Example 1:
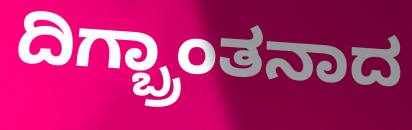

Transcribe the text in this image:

ದಿಗ್ಬ್ರಾಂತನಾದ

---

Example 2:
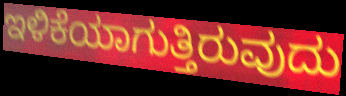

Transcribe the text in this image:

ಇಳಿಕೆಯಾಗುತ್ತಿರುವುದು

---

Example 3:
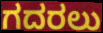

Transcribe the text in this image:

ಗದರಲು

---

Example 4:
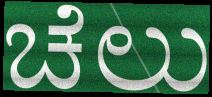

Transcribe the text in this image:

ಚೆಲು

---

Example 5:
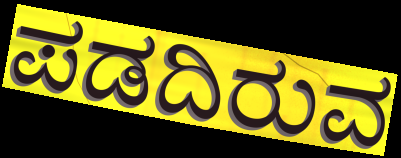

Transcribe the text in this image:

ಪಡದಿರುವ